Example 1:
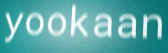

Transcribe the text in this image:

yookaan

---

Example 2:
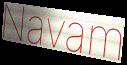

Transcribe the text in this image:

Navam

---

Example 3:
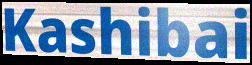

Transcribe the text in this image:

Kashibai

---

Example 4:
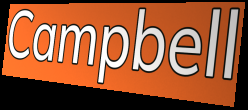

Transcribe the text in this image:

Campbell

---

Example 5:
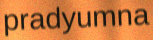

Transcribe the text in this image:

pradyumna